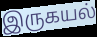
இருகயல்